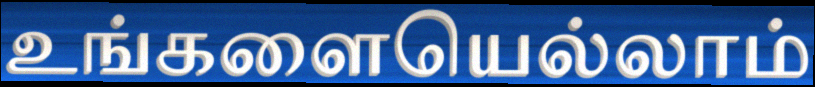
உங்களையெல்லாம்